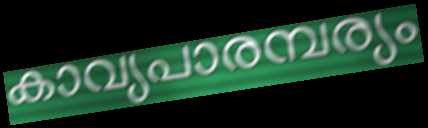
കാവ്യപാരമ്പര്യം